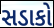
સડાકો